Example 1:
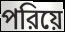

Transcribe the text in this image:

পরিয়ে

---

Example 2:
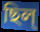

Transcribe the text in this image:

ছিল্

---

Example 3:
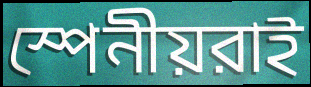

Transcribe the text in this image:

স্পেনীয়রাই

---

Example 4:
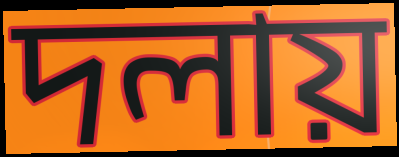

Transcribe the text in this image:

দলায়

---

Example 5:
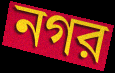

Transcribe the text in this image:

নগর